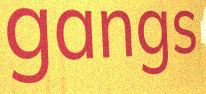
gangs